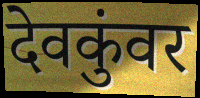
देवकुंवर